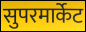
सुपरमार्केट